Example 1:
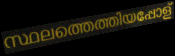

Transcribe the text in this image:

സ്ഥലത്തെത്തിയപ്പോള്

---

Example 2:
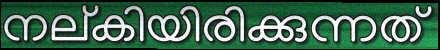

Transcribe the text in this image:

നല്കിയിരിക്കുന്നത്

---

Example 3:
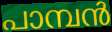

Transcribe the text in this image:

പാമ്പൻ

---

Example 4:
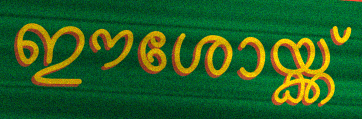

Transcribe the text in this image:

ഈശോയ്ക്ക്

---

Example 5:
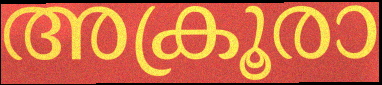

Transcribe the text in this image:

അക്രൂരാ